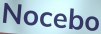
Nocebo